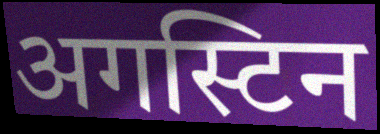
अगस्टिन